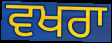
ਵਖਰਾ